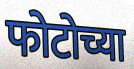
फोटोच्या